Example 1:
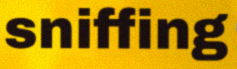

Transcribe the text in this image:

sniffing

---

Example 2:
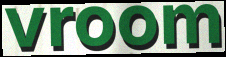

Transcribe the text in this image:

vroom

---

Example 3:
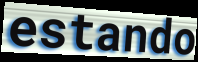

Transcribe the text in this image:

estando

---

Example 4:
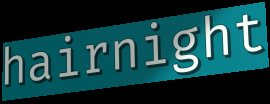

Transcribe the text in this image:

hairnight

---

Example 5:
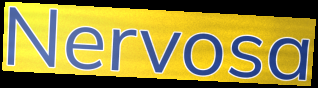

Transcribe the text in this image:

Nervosa